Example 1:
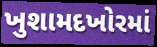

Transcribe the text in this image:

ખુશામદખોરમાં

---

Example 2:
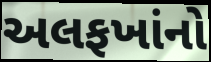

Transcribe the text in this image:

અલફખાંનો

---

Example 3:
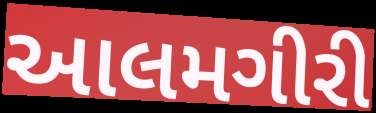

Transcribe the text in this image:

આલમગીરી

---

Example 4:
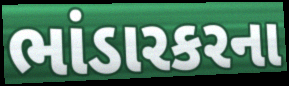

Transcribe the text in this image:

ભાંડારકરના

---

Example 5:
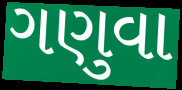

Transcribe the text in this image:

ગણુવા